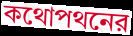
কথোপথনের